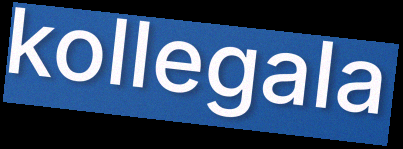
kollegala